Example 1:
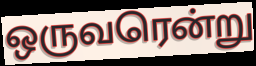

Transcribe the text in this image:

ஒருவரென்று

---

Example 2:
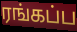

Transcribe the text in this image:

ரங்கப்ப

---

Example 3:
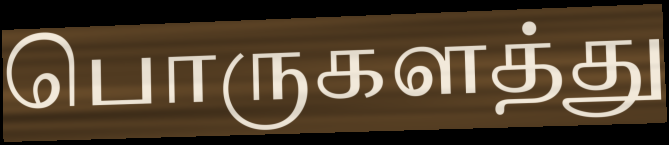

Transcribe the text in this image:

பொருகளத்து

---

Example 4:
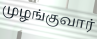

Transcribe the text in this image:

முழங்குவார்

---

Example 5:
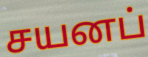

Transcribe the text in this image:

சயனப்